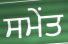
ਸਮੇਂਤ